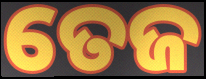
ତେଜ